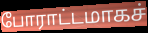
போராட்டமாகச்